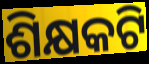
ଶିକ୍ଷକଟି